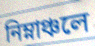
নিম্নাঞ্চলে